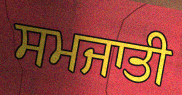
ਸਮਜਾਤੀ